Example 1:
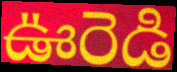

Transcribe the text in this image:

ఊరెడి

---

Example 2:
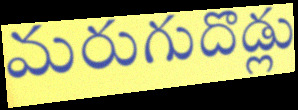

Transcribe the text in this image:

మరుగుదొడ్లు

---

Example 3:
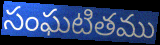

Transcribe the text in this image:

సంఘటితము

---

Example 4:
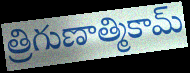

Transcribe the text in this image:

త్రిగుణాత్మికామ్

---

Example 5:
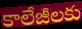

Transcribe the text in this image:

కాలేజీలకు